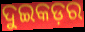
ଦୁଇକଡ଼ର